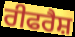
ਰੀਫਰੈਸ਼